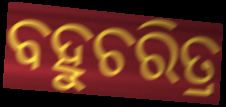
ବହୁଚରିତ୍ର